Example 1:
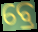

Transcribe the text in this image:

ବ୍ରେ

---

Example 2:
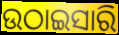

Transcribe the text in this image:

ଉଠାଇସାରି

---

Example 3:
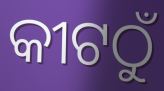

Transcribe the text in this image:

କୀଟଠୁଁ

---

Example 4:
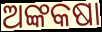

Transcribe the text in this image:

ଅଙ୍କକଷା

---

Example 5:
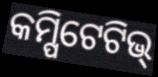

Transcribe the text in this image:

କମ୍ପିଟେଟିଭ୍